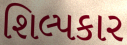
શિલ્પકાર